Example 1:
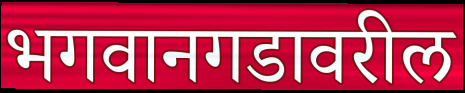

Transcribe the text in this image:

भगवानगडावरील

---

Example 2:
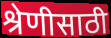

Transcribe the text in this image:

श्रेणीसाठी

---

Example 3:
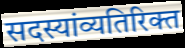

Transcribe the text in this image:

सदस्यांव्यतिरिक्त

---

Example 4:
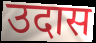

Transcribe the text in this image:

उदास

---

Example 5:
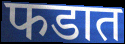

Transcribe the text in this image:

फडात